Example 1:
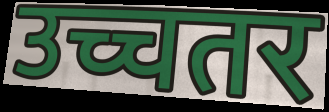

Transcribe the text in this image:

उच्चतर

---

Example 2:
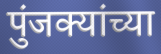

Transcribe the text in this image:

पुंजक्यांच्या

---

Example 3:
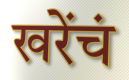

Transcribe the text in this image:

खरेंचं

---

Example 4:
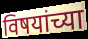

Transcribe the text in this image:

विषयांच्या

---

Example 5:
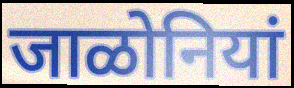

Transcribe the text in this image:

जाळोनियां